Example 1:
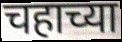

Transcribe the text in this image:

चहाच्या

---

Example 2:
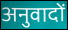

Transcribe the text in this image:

अनुवादों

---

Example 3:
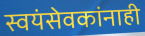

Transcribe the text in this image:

स्वयंसेवकांनाही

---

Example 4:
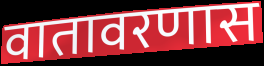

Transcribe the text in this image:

वातावरणास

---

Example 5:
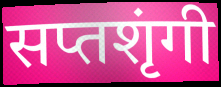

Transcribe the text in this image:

सप्तशृंगी